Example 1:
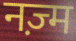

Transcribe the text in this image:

नज़्म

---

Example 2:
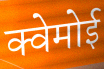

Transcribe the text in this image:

क्वेमोई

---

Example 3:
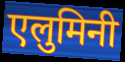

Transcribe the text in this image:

एलुमिनी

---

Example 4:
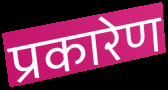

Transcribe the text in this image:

प्रकारेण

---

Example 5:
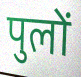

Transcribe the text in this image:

पुलों